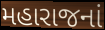
મહારાજનાં